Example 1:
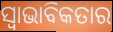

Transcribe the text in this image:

ସ୍ଵାଭାବିକତାର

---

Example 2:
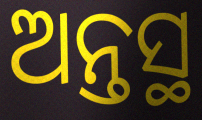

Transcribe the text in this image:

ଅନ୍ତସ୍ଥ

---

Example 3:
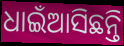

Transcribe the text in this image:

ଧାଇଁଆସିଛନ୍ତି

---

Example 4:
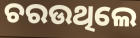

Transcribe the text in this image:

ଚରଉଥିଲେ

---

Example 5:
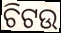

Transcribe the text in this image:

ଚିଟଉ